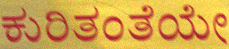
ಕುರಿತಂತೆಯೇ